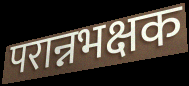
परान्नभक्षक